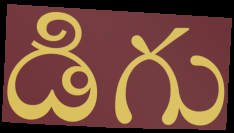
డిగు